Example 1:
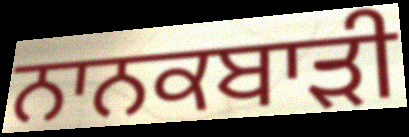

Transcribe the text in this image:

ਨਾਨਕਬਾੜੀ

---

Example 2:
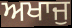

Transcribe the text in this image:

ਅਖਾਜੁ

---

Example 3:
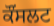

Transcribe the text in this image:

ਕੌਂਸਲਟ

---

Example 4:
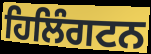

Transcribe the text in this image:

ਹਿਲਿੰਗਟਨ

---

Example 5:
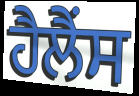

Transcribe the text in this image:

ਹੈਲੈਂਸ